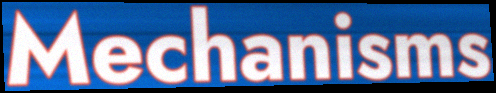
Mechanisms